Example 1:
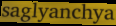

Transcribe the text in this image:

saglyanchya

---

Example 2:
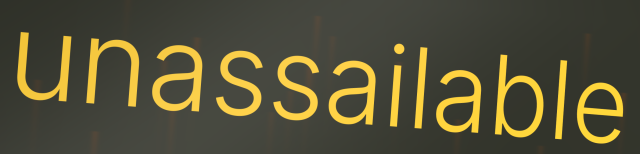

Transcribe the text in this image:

unassailable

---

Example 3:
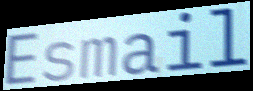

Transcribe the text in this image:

Esmail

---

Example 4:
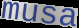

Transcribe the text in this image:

musa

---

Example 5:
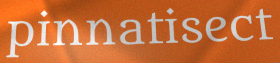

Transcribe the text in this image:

pinnatisect